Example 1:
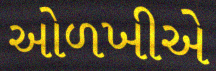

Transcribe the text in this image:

ઓળખીએ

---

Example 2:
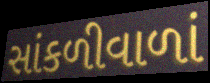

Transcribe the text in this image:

સાંકળીવાળાં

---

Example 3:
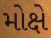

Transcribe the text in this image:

મોક્ષે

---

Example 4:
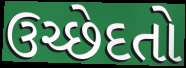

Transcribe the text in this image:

ઉચ્છેદતો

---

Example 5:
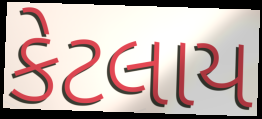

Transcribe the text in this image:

કેટલાય